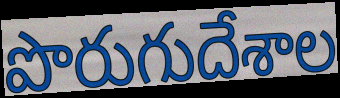
పొరుగుదేశాల